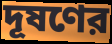
দূষণের